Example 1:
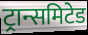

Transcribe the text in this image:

ट्रान्समिटेड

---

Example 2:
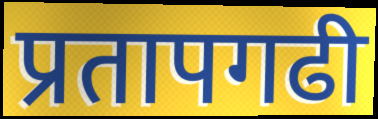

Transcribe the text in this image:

प्रतापगढी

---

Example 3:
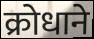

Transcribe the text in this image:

क्रोधाने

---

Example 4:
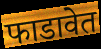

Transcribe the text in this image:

फाडावेत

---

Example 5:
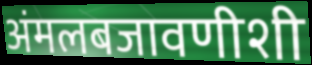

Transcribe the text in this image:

अंमलबजावणीशी